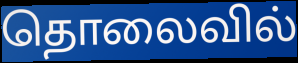
தொலைவில்